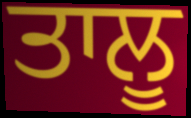
ਤਾਲੂ